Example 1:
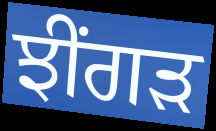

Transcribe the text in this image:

ਝੀਂਗੜ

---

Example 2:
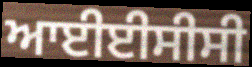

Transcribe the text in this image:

ਆਈਈਸੀਸੀ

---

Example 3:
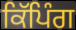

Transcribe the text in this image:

ਕਿੱਪਿੰਗ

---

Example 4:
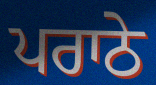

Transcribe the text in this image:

ਪਰਾਠੇ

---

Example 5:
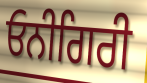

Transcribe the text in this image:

ਓਨੀਗਿਰੀ